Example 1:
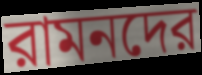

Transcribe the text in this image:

রামনদের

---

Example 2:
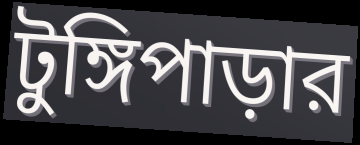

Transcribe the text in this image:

টুঙ্গিপাড়ার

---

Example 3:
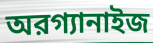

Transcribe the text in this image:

অরগ্যানাইজ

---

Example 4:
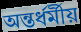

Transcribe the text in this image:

অন্তর্ধর্মীয়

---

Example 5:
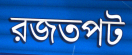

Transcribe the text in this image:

রজতপট